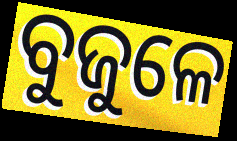
ବୁଜୁଳେ